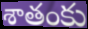
శాతంకు